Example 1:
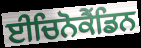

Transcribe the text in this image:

ਈਚਿਨੋਕੈਂਡਿਨ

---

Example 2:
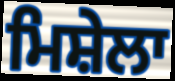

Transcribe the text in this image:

ਮਿਸ਼ੇਲਾ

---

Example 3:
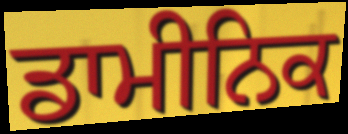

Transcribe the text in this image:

ਡਾਮੀਨਿਕ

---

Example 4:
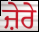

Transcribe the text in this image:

ਜ਼ੇਰੇ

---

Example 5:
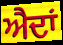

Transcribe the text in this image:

ਐਦਾਂ